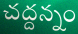
చద్దన్నం